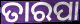
ତାରପା